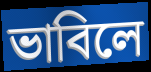
ভাবিলে